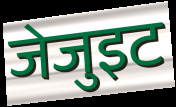
जेजुइट